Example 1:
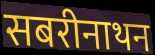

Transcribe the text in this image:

सबरीनाथन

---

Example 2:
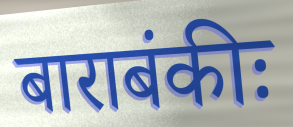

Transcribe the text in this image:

बाराबंकीः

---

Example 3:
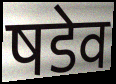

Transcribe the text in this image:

षडेव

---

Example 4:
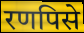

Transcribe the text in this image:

रणपिसे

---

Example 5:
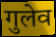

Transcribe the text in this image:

गुलेव